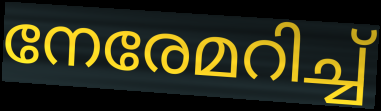
നേരേമറിച്ച്